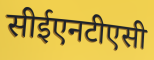
सीईएनटीएसी